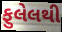
ફુલેલથી